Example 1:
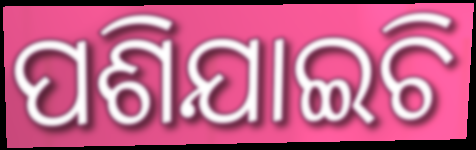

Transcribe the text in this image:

ପଶିଯାଇଚି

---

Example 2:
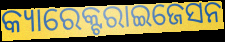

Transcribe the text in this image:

କ୍ୟାରେକ୍ଟରାଇଜେସନ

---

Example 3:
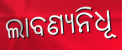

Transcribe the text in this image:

ଲାବଣ୍ୟନିଧୂ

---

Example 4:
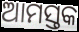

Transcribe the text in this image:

ଆମସ୍ତକ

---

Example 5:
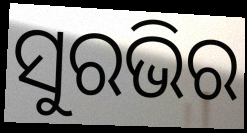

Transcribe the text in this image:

ସୁରଭିର